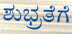
ಶುಭ್ರತೆಗೆ